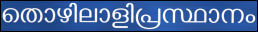
തൊഴിലാളിപ്രസ്ഥാനം